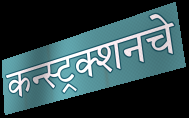
कन्स्ट्रक्शनचे